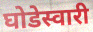
घोडेस्वारी